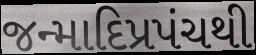
જન્માદિપ્રપંચથી